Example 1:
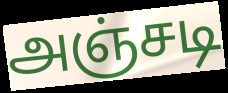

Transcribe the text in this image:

அஞ்சடி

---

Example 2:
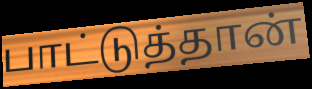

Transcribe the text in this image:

பாட்டுத்தான்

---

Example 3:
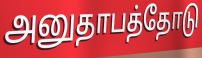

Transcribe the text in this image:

அனுதாபத்தோடு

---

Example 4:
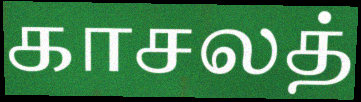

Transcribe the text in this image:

காசலத்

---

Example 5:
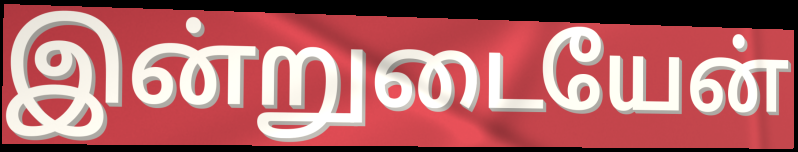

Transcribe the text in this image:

இன்றுடையேன்